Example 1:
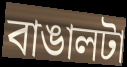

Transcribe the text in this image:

বাঙালটা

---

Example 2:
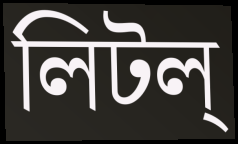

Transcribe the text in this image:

লিটল্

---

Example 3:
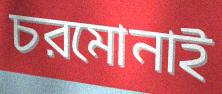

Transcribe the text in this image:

চরমোনাই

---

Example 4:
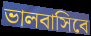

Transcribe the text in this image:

ভালবাসিবে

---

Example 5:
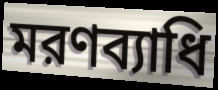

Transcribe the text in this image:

মরণব্যাধি